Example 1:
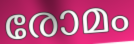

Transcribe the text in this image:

രോമം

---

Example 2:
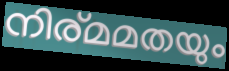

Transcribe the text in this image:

നിര്മമതയും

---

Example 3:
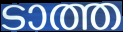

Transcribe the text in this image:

ടാത്ത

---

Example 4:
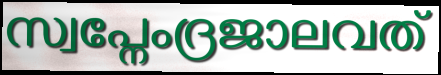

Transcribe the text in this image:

സ്വപ്നേംദ്രജാലവത്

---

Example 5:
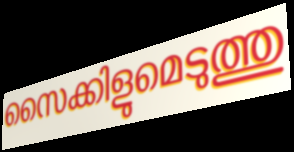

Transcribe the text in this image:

സൈക്കിളുമെടുത്തു